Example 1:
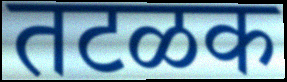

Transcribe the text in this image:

तटळक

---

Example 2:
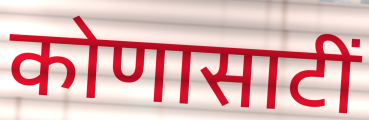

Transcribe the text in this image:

कोणासाटीं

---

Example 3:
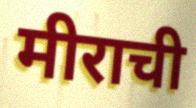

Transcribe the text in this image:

मीराची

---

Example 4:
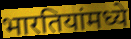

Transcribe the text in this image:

भारतियांमध्ये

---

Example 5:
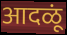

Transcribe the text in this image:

आदळूं